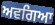
ਅਵਗਿਆ